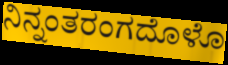
ನಿನ್ನಂತರಂಗದೊಳೊ